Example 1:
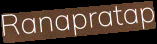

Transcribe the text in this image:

Ranapratap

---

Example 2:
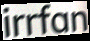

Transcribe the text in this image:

irrfan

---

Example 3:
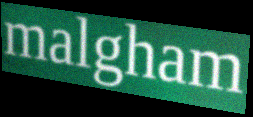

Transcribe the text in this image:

malgham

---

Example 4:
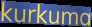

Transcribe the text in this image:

kurkuma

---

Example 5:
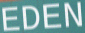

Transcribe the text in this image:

EDEN